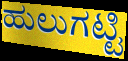
ಹುಲುಗಟ್ಟಿ